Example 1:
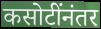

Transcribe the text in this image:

कसोटींनंतर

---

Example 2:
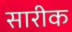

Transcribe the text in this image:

सारीक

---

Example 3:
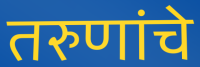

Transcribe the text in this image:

तरुणांचे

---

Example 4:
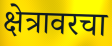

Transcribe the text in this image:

क्षेत्रावरचा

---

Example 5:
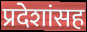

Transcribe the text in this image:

प्रदेशांसह